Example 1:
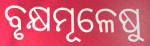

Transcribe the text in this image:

ବୃକ୍ଷମୂଳେଷୁ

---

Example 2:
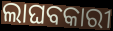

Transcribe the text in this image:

ଲାଘବକାରୀ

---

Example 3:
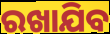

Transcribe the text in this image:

ରଖାଯିବ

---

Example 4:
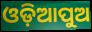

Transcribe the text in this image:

ଓଡ଼ିଆପୁଅ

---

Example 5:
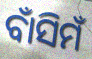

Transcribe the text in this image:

ବାଁସିମଁ